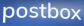
postbox